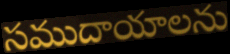
సముదాయాలను